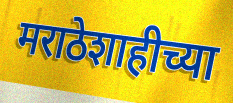
मराठेशाहीच्या